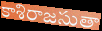
కాశిరాజసుతా